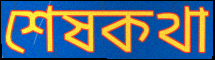
শেষকথা